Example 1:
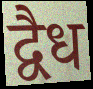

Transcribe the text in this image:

द्वैध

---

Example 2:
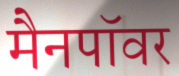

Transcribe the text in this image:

मैनपॉवर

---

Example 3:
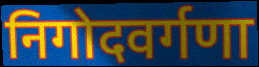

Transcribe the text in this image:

निगोदवर्गणा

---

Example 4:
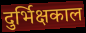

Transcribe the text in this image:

दुर्भिक्षकाल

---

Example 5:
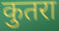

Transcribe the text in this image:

कुतरा